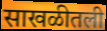
साखळीतली